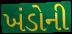
ખંડોની